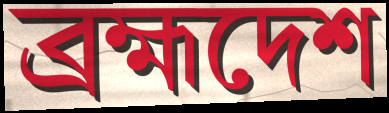
ব্রহ্মদেশ